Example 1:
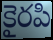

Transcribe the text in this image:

కైరపి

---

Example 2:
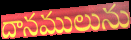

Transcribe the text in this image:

దానములును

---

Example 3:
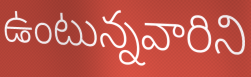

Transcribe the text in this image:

ఉంటున్నవారిని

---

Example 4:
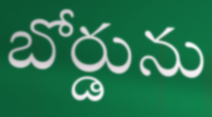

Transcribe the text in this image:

బోర్డును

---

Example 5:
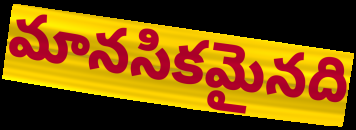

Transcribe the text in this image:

మానసికమైనది